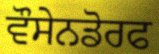
ਵੌਸੇਨਡੋਰਫ